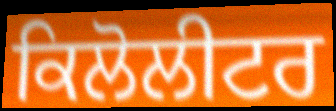
ਕਿਲੋਲੀਟਰ